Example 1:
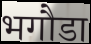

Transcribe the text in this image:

भगौडा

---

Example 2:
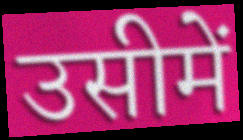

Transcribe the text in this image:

उसीमें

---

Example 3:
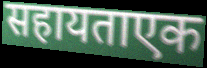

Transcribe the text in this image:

सहायताएक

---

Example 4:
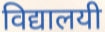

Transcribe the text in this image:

विद्यालयी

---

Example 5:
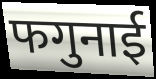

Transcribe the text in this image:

फगुनाई